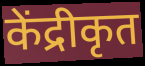
केंद्रीकृत